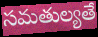
సమతుల్యతే